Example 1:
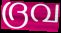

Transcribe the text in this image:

ദ്രവ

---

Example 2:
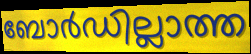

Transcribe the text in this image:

ബോർഡില്ലാത്ത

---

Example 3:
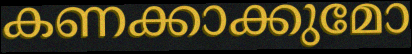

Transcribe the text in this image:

കണക്കാക്കുമോ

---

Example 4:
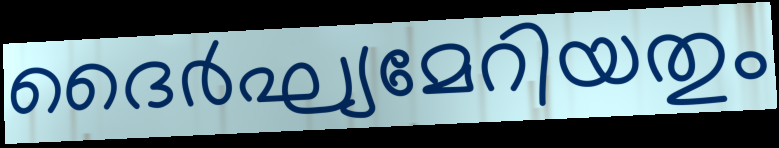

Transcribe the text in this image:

ദൈർഘ്യമേറിയതും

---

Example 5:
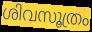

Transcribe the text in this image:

ശിവസൂത്രം